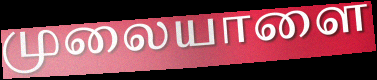
முலையாளை